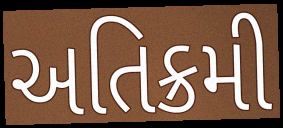
અતિક્રમી